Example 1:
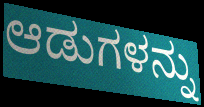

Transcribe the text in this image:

ಆಡುಗಳನ್ನು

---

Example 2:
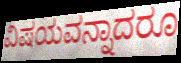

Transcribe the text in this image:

ವಿಷಯವನ್ನಾದರೂ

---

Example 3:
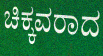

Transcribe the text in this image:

ಚಿಕ್ಕವರಾದ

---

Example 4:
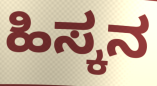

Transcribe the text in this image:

ಹಿಸ್ಕನ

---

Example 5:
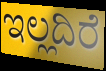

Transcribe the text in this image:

ಇಲ್ಲದಿರೆ